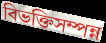
বিভক্তিসম্পন্ন